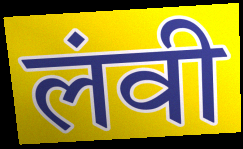
लंवी